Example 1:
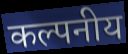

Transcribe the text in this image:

कल्पनीय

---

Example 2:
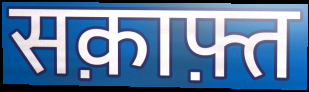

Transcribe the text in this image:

सक़ाफ़्त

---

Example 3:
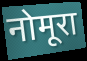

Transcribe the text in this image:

नोमूरा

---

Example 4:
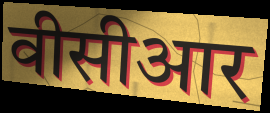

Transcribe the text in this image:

वीसीआर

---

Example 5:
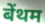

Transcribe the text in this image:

बेंथम